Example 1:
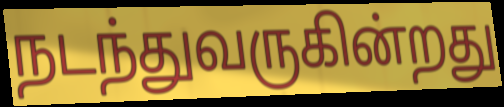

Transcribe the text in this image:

நடந்துவருகின்றது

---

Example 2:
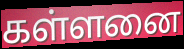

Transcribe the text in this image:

கள்ளனை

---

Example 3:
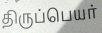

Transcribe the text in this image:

திருப்பெயர்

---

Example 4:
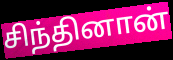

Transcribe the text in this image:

சிந்தினான்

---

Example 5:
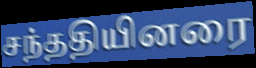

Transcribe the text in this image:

சந்ததியினரை